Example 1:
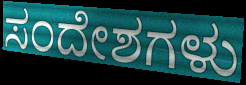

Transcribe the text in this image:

ಸಂದೇಶಗಳು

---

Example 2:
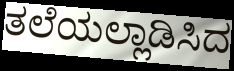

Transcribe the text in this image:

ತಲೆಯಲ್ಲಾಡಿಸಿದ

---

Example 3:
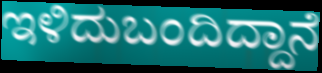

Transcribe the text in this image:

ಇಳಿದುಬಂದಿದ್ದಾನೆ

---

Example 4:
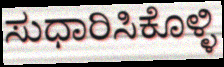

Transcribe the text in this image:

ಸುಧಾರಿಸಿಕೊಳ್ಳಿ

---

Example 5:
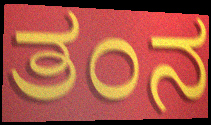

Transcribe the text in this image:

ತಂನ